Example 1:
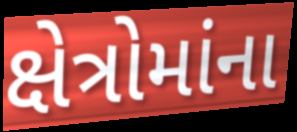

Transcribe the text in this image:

ક્ષેત્રોમાંના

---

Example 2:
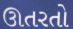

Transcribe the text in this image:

ઊતરતો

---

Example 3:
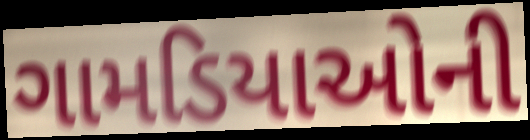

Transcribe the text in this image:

ગામડિયાઓની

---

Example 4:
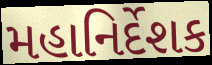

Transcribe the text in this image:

મહાનિર્દેશક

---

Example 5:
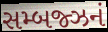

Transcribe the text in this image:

સમ્બજ્ઝનં